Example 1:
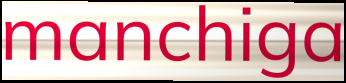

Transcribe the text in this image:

manchiga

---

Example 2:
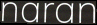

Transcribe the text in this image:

naran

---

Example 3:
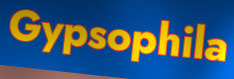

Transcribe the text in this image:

Gypsophila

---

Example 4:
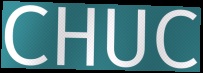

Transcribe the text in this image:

CHUC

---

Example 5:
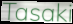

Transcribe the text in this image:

Tasaki